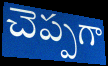
చెప్పగా